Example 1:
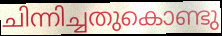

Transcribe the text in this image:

ചിന്നിച്ചതുകൊണ്ടു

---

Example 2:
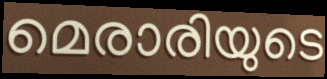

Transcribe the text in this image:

മെരാരിയുടെ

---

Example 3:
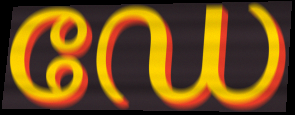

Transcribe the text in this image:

ഡേ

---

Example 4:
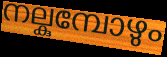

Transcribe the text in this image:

നല്കുമ്പോഴും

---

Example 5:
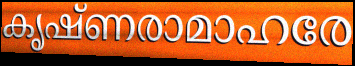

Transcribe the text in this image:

കൃഷ്ണരാമാഹരേ